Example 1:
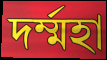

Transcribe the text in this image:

দৰ্ম্মহা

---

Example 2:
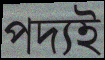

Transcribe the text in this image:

পদ্যই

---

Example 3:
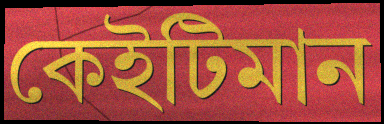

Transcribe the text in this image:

কেইটিমান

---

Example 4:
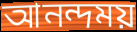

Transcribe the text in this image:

আনন্দময়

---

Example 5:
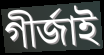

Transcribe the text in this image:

গীৰ্জাই